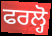
ਫਰਲ੍ਹੋ